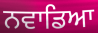
ਨਵਾਡਿਆ